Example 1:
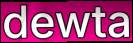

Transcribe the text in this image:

dewta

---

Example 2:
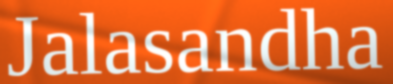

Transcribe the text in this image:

Jalasandha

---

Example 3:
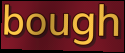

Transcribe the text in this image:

bough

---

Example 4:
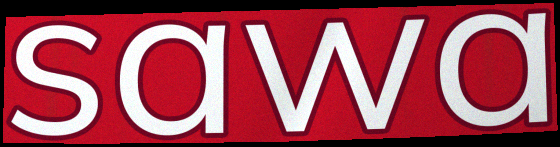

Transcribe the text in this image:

sawa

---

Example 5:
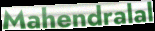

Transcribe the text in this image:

Mahendralal